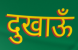
दुखाऊँ